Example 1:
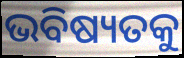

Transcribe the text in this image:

ଭବିଷ୍ୟତକୁ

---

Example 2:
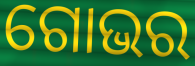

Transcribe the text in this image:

ଗୋଭର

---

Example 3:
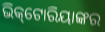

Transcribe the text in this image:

ଭିକ୍‌ଟୋରିୟାଙ୍କର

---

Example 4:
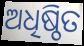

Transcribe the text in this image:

ଅଧିଷ୍ଠିତ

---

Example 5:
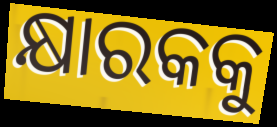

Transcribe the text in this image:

କ୍ଷାରକକୁ